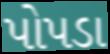
પોપડા